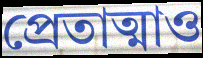
প্রেতাত্মাও